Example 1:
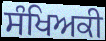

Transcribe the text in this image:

ਸੰਖਿਅਕੀ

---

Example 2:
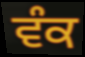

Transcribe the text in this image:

ਵੰਕ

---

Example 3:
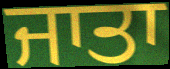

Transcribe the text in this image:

ਜਾਤਾ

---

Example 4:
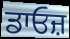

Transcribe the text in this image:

ਡਾਓਜ਼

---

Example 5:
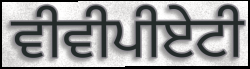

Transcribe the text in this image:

ਵੀਵੀਪੀਏਟੀ